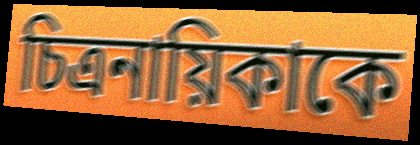
চিত্রনায়িকাকে